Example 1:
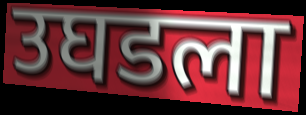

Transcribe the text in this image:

उघडला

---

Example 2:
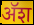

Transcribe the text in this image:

ॲश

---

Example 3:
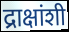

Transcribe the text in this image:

द्राक्षांशी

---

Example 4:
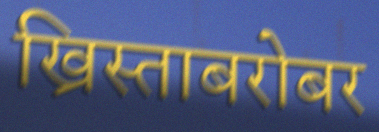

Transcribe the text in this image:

ख्रिस्ताबरोबर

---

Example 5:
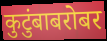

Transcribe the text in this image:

कुटुंबाबरोबर